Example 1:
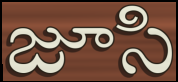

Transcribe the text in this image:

జూసి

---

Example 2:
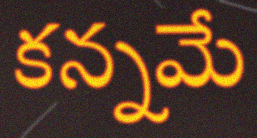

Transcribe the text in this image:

కన్నమే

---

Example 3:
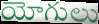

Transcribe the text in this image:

యోగులు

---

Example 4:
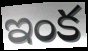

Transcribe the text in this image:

ఇంక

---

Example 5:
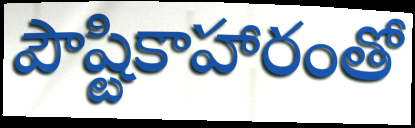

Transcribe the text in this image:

పౌష్టికాహారంతో